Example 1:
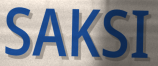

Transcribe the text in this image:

SAKSI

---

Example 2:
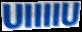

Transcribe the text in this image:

UIIIIU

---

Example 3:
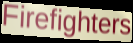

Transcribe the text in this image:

Firefighters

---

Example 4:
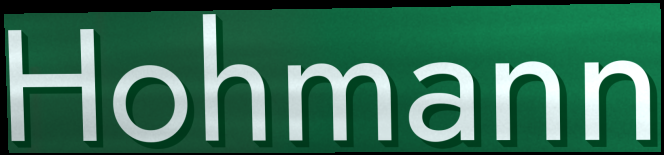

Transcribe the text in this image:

Hohmann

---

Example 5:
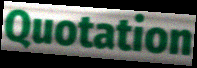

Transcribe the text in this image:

Quotation